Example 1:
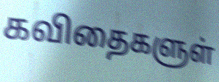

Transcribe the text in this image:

கவிதைகளுள்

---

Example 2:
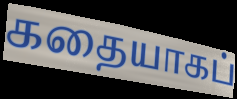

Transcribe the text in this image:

கதையாகப்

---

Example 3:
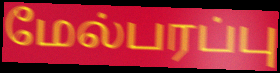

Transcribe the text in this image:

மேல்பரப்பு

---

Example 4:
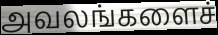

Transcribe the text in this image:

அவலங்களைச்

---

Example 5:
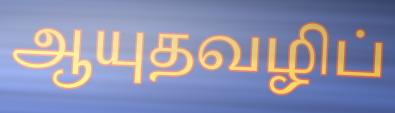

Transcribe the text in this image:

ஆயுதவழிப்